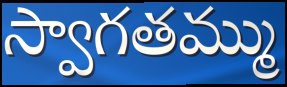
స్వాగతమ్ము